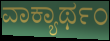
ವಾಕ್ಯಾರ್ಥಂ